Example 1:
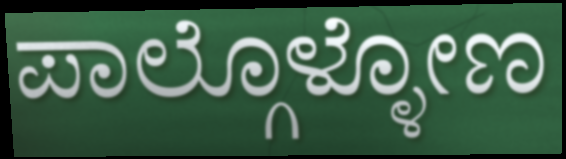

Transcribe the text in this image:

ಪಾಲ್ಗೊಳ್ಳೋಣ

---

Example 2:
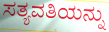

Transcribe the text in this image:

ಸತ್ಯವತಿಯನ್ನು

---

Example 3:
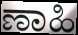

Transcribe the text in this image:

ಣಾಹಿ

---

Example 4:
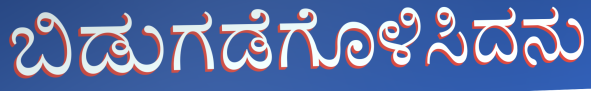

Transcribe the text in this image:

ಬಿಡುಗಡೆಗೊಳಿಸಿದನು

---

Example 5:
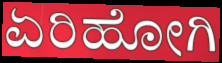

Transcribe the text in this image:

ಏರಿಹೋಗಿ